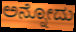
ಅನ್ನೋದು